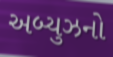
અબ્યુઝનો